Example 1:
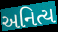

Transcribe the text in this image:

અનિત્ય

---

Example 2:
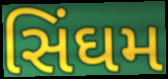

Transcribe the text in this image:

સિંઘમ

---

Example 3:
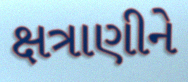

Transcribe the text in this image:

ક્ષત્રાણીને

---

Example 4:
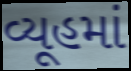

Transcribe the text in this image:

વ્યૂહમાં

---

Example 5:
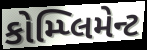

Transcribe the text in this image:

કોમ્પ્લિમેન્ટ